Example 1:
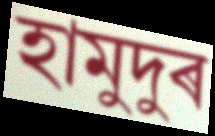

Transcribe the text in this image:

হামুদুৰ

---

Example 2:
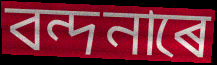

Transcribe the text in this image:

বন্দনাৰে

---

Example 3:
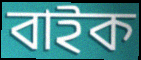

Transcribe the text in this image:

বাইক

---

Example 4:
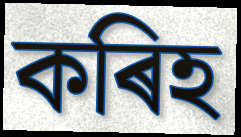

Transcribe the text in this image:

কৰিহ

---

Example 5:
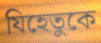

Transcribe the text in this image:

যিহেতুকে